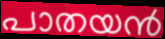
പാതയൻ